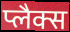
प्लैक्स